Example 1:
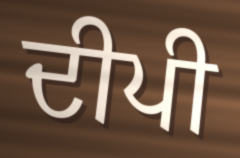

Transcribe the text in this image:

ਦੀਪੀ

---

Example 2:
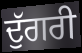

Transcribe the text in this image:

ਦੁੱਗਰੀ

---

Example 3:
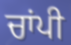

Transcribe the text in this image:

ਚਾਂਪੀ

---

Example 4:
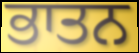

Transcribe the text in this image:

ਭਾਤਨ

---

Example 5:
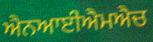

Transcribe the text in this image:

ਐਨਆਈਐਮਐਚ